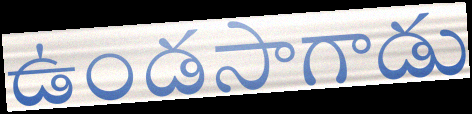
ఉండసాగాడు